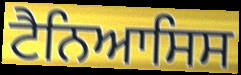
ਟੈਨਿਆਸਿਸ